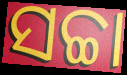
ସଚ୍ଚା